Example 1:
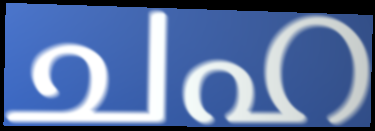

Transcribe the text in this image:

ചഹ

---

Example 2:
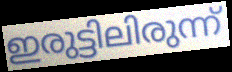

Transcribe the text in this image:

ഇരുട്ടിലിരുന്ന്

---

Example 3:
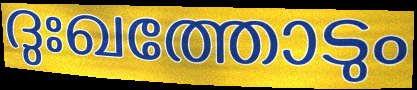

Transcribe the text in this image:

ദുഃഖത്തോടും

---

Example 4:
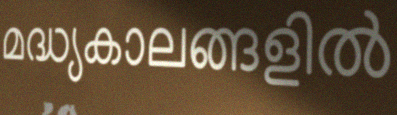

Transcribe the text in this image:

മദ്ധ്യകാലങ്ങളിൽ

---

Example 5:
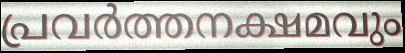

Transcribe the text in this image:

പ്രവർത്തനക്ഷമവും